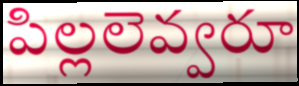
పిల్లలెవ్వరూ